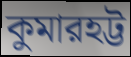
কুমারহট্ট